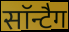
सॉन्टैग